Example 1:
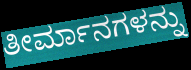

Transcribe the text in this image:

ತೀರ್ಮಾನಗಳನ್ನು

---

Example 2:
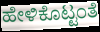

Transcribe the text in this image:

ಹೇಳಿಕೊಟ್ಟಂತೆ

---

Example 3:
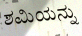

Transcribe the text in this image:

ಶಮಿಯನ್ನು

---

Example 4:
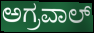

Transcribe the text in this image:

ಅಗ್ರವಾಲ್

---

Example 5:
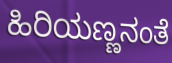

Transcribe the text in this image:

ಹಿರಿಯಣ್ಣನಂತೆ